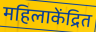
महिलाकेंद्रित